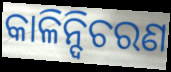
କାଳିନ୍ଦିଚରଣ